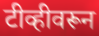
टीव्हीवरून